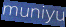
muniyu